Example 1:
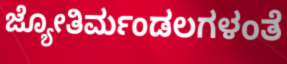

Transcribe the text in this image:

ಜ್ಯೋತಿರ್ಮಂಡಲಗಳಂತೆ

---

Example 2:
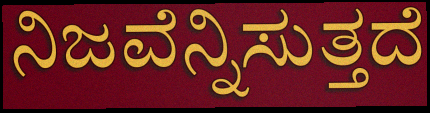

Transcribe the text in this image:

ನಿಜವೆನ್ನಿಸುತ್ತದೆ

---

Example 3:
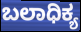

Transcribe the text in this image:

ಬಲಾಧಿಕ್ಯ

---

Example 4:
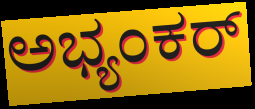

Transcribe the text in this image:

ಅಭ್ಯಂಕರ್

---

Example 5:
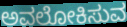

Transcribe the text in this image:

ಅವಲೋಕಿಸುವ